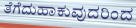
ತೆಗೆದುಹಾಕುವುದರಿಂದ